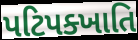
પટિપક્ખાતિ